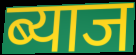
ब्‍याज